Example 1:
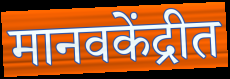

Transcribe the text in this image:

मानवकेंद्रीत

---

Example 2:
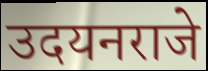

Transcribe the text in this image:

उदयनराजे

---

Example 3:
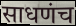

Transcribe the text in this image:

साधणंच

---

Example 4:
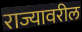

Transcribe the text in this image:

राज्यावरील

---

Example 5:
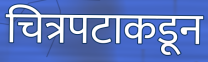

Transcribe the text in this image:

चित्रपटाकडून